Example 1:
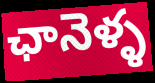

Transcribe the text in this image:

ఛానెళ్ళ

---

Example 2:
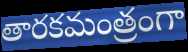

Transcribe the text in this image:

తారకమంత్రంగా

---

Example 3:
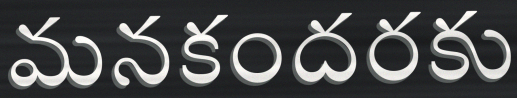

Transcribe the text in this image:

మనకందరకు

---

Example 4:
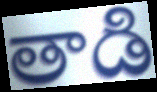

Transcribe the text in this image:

తాడి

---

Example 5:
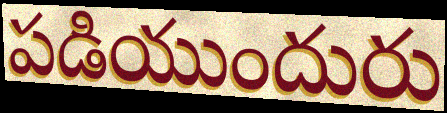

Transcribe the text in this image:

పడియుందురు